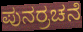
ಪುನರ್ರಚನೆ